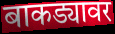
बाकड्यावर